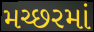
મચ્છરમાં